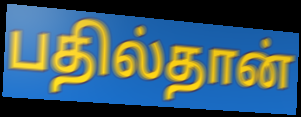
பதில்தான்